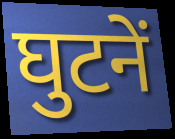
घुटनें